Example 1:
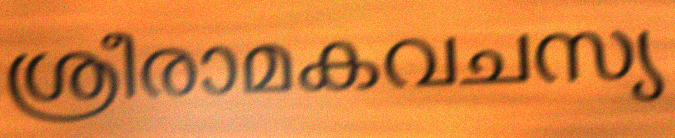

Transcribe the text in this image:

ശ്രീരാമകവചസ്യ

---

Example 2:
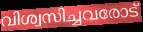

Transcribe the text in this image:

വിശ്വസിച്ചവരോട്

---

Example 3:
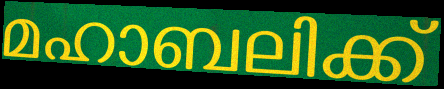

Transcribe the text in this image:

മഹാബലിക്ക്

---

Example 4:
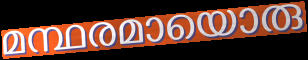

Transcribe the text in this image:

മന്ഥരമായൊരു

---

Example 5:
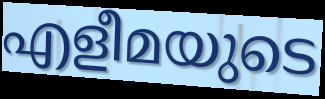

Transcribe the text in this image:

എളീമയുടെ